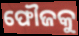
ଫୌଜକୁ